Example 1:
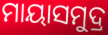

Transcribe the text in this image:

ମାୟାସମୁଦ୍ର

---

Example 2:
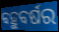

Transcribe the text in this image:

ବହୁବର୍ଷର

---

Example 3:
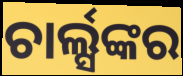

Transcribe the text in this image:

ଚାର୍ଲ୍ସଙ୍କର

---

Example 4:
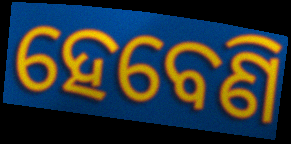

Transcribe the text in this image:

ହେବେଣି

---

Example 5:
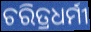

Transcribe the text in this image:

ଚରିତ୍ରଧର୍ମୀ